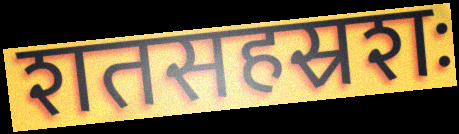
शतसहस्रशः